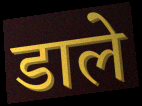
डाले